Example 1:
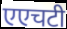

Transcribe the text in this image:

एएचटी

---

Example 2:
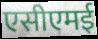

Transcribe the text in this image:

एसीएमई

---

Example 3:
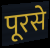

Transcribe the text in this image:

पूरसे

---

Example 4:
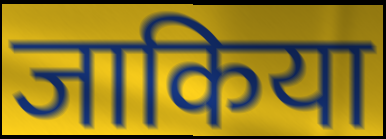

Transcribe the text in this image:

जाकिया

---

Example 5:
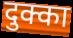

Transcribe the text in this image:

दुक्का